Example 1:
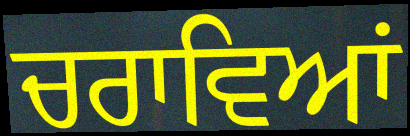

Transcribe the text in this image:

ਚਰਾਵਿਆਂ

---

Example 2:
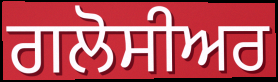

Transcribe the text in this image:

ਗਲੋਸੀਅਰ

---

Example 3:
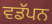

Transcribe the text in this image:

ਵਡੱਪਨ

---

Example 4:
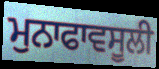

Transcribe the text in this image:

ਮੁਨਾਫਾਵਸੂਲੀ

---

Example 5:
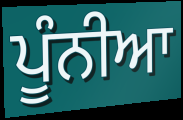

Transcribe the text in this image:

ਪੂੰਨੀਆ